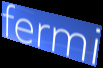
fermi